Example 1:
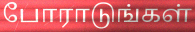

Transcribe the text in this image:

போராடுங்கள்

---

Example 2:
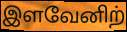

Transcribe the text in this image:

இளவேனிற்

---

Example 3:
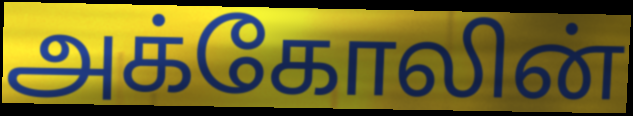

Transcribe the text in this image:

அக்கோலின்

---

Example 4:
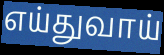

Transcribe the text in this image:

எய்துவாய்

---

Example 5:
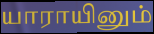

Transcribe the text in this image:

யாராயினும்